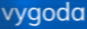
vygoda